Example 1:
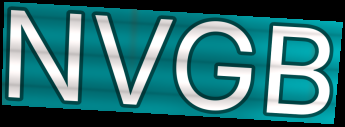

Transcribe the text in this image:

NVGB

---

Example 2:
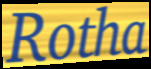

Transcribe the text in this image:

Rotha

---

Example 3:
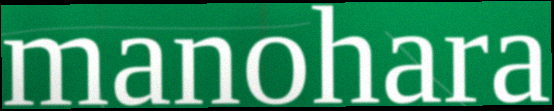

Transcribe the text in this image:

manohara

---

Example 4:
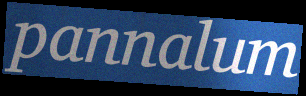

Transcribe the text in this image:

pannalum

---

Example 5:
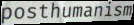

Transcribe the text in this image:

posthumanism